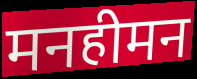
मनहीमन